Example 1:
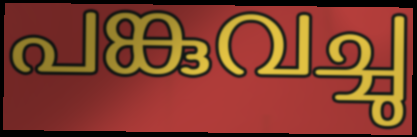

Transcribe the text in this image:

പങ്കുവച്ചു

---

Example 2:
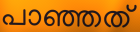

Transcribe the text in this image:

പാഞ്ഞത്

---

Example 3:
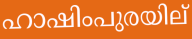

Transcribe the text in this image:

ഹാഷിംപുരയില്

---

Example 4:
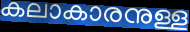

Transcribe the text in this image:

കലാകാരനുള്ള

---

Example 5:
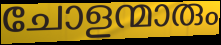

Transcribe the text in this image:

ചോളന്മാരും